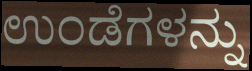
ಉಂಡೆಗಳನ್ನು